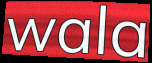
wala